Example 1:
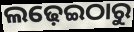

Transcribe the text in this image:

ଲଢ଼େଇଠାରୁ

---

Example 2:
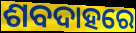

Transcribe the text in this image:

ଶବଦାହରେ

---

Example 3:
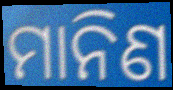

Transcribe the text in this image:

ମାନିଣ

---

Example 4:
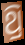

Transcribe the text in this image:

ଥ୍ରି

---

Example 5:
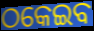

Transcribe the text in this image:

ଠକେଇବ